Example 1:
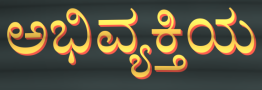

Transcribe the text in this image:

ಅಭಿವ್ಯಕ್ತಿಯ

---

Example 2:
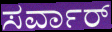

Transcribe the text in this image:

ಸರ್ವಾರ್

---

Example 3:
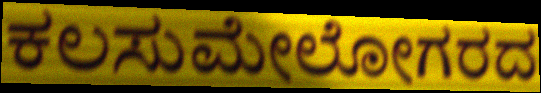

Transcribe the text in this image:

ಕಲಸುಮೇಲೋಗರದ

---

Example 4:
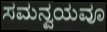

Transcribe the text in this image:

ಸಮನ್ವಯವೂ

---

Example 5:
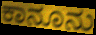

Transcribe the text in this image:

ಕಾನೂನು